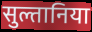
सुल्तानिया